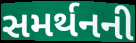
સમર્થનની